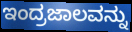
ಇಂದ್ರಜಾಲವನ್ನು